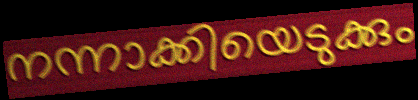
നന്നാക്കിയെടുക്കും